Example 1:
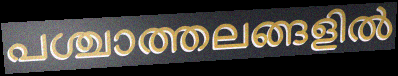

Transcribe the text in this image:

പശ്ചാത്തലങ്ങളിൽ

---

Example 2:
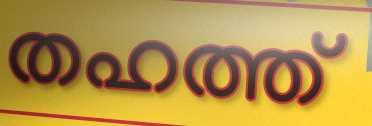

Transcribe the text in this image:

തഹത്ത്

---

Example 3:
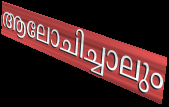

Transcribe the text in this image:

ആലോചിച്ചാലും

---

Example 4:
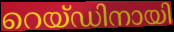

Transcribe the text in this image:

റെയ്ഡിനായി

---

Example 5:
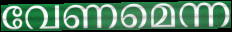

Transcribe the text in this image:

വേണമെന്ന